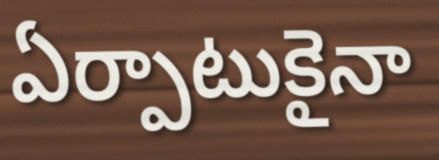
ఏర్పాటుకైనా